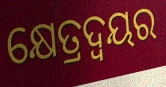
କ୍ଷେତ୍ରଦ୍ୱୟର